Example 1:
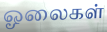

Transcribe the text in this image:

ஓலைகள்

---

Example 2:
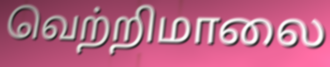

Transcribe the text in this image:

வெற்றிமாலை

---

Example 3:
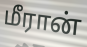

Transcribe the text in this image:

மீரான்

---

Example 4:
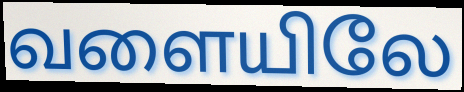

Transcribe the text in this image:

வளையிலே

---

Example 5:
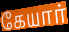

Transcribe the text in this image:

கேயார்